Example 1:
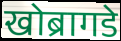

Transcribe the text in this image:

खोब्रागडे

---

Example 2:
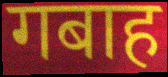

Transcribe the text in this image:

गबाह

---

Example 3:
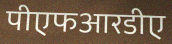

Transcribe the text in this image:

पीएफआरडीए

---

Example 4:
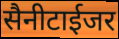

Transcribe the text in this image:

सैनीटाईजर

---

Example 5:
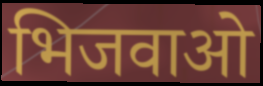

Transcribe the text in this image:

भिजवाओ